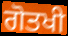
ਗੋਤਖੀ